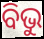
ବିଭୁ